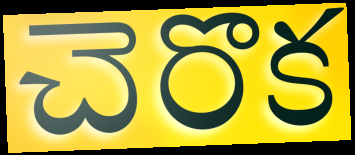
చెరొక